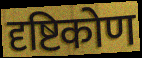
दृष्टिकोण